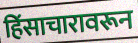
हिंसाचारावरून